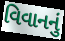
વિવાનનું